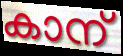
കാന്